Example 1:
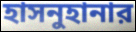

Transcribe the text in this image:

হাসনুহানার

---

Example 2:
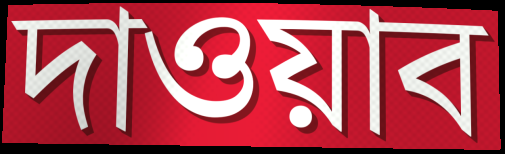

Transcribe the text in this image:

দাওয়াব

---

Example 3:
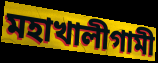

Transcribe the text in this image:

মহাখালীগামী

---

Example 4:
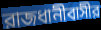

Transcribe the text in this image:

রাজধানীবাসীর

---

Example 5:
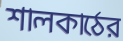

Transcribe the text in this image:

শালকাঠের